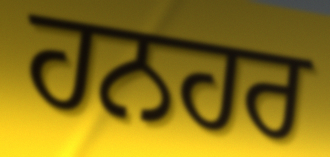
ਹਨਹਰ